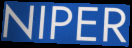
NIPER